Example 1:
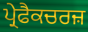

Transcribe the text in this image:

ਪ੍ਰੇਫੈਕਚਰਜ਼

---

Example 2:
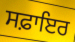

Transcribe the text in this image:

ਸਫ਼ਾਇਰ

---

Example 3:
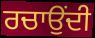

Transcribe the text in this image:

ਰਚਾਉਂਦੀ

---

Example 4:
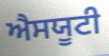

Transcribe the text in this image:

ਐਸਯੂਟੀ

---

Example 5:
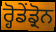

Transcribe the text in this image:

ਰ੍ਹੋਡੇਂਡ੍ਰੋਨ